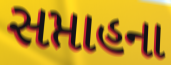
સપ્તાહના